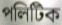
পলিটিক